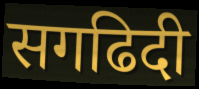
सगढिदी